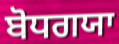
ਬੋਧਗਯਾ